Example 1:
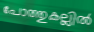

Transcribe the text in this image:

പോത്തുകല്ലിൽ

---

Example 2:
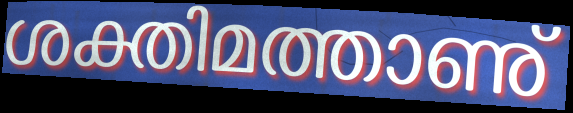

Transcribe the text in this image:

ശക്തിമത്താണു്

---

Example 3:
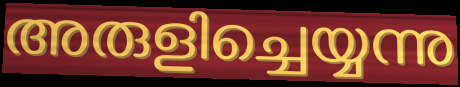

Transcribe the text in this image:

അരുളിച്ചെയ്യന്നു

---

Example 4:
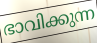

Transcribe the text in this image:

ഭാവിക്കുന്ന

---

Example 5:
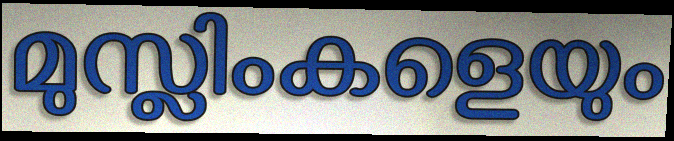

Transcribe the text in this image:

മുസ്ലിംകളെയും